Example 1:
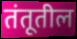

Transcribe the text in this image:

तंतूतील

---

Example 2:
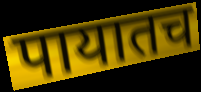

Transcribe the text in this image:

पायातच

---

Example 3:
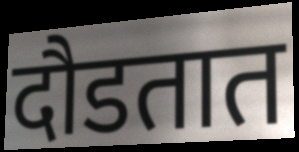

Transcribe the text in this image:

दौडतात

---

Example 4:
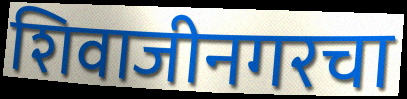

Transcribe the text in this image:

शिवाजीनगरचा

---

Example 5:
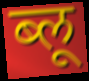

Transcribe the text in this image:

ब्लू